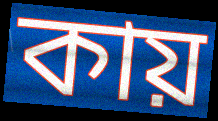
কায়